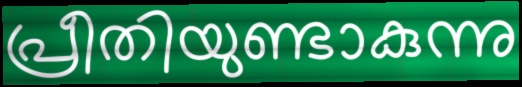
പ്രീതിയുണ്ടാകുന്നു